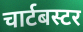
चार्टबस्टर